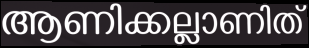
ആണിക്കല്ലാണിത്